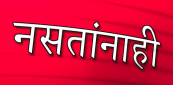
नसतांनाही